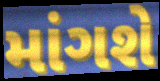
માંગશે